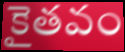
కైతవం